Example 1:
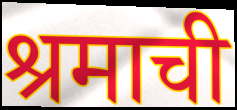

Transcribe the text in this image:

श्रमाची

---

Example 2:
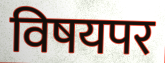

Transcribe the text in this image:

विषयपर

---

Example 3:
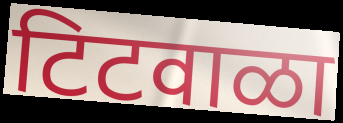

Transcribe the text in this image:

टिटवाळा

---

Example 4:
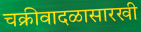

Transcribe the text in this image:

चक्रीवादळासारखी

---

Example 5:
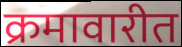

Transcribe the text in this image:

क्रमावारीत